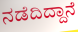
ನಡೆದಿದ್ದಾನೆ